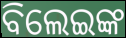
ବିଲେଇଙ୍କ